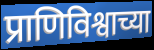
प्राणिविश्वाच्या